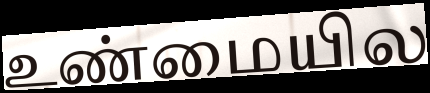
உண்மையில